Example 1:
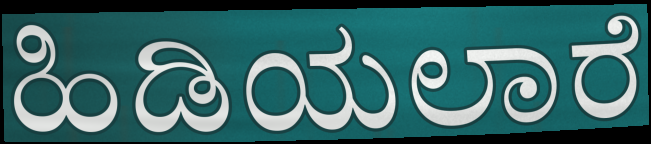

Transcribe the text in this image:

ಹಿಡಿಯಲಾರೆ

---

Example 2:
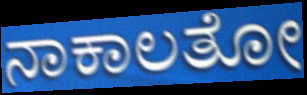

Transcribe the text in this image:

ನಾಕಾಲತೋ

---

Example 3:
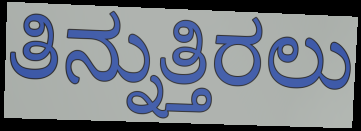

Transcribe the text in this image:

ತಿನ್ನುತ್ತಿರಲು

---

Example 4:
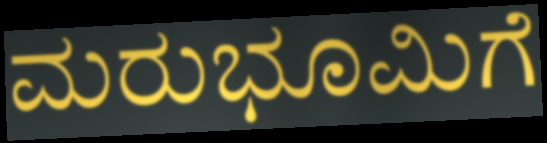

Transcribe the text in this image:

ಮರುಭೂಮಿಗೆ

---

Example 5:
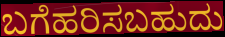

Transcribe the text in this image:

ಬಗೆಹರಿಸಬಹುದು